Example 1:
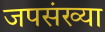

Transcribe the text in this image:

जपसंख्या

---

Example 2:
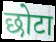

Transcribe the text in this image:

छोटा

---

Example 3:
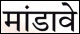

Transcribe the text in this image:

मांडावे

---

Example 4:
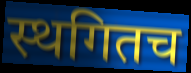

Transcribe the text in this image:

स्थगितच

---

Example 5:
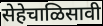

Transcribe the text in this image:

सेहेचाळिसावी